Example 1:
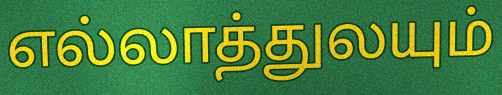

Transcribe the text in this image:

எல்லாத்துலயும்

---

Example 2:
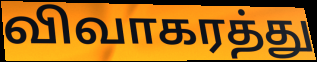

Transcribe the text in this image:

விவாகரத்து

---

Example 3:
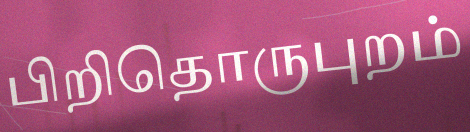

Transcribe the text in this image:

பிறிதொருபுறம்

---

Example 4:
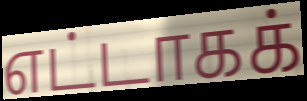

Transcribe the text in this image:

எட்டாகக்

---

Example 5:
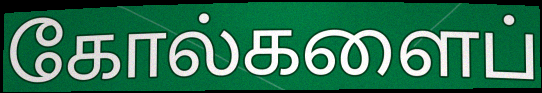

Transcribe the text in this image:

கோல்களைப்